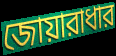
জোয়ারাধার